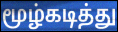
மூழ்கடித்து